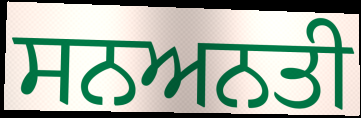
ਸਨਅਨਤੀ